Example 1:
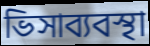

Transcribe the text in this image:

ভিসাব্যবস্থা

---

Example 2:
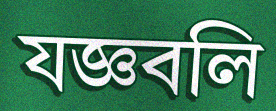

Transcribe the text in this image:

যজ্ঞবলি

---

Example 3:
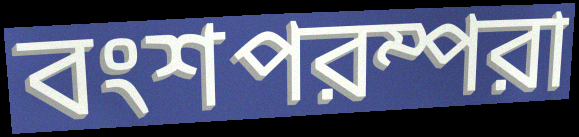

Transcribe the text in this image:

বংশপরম্পরা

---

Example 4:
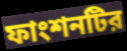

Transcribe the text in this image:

ফাংশনটির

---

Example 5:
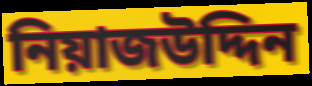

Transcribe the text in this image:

নিয়াজউদ্দিন